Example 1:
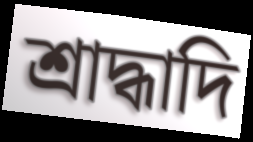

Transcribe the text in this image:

শ্রাদ্ধাদি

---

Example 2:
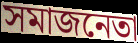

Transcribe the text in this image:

সমাজনেতা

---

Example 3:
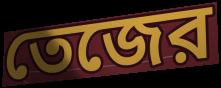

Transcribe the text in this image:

তেজের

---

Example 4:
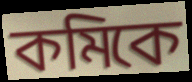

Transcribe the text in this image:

কমিকে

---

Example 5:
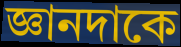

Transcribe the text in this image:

জ্ঞানদাকে